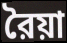
রৈয়া